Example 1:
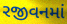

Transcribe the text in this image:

રજીવનમાં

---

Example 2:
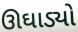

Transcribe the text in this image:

ઊઘાડ્યો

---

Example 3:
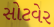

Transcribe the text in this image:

સોટવેર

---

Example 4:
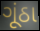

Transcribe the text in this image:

ગૂંઠા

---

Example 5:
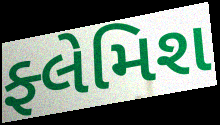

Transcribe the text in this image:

ફ્લેમિશ